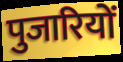
पुजारियों